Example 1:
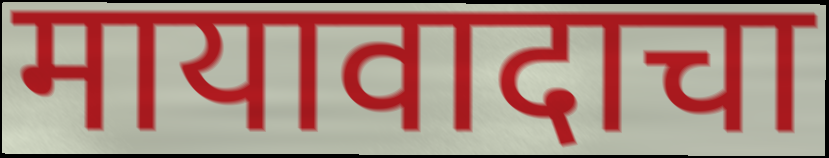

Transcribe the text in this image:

मायावादाचा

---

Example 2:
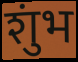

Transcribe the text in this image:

शुंभ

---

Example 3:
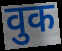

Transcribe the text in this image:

वुक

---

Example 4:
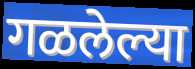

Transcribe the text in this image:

गळलेल्या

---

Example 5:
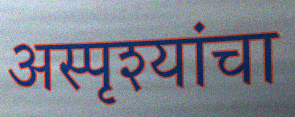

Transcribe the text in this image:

अस्पृश्यांचा